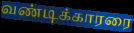
வண்டிக்காரரை